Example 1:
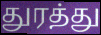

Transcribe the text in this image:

துரத்து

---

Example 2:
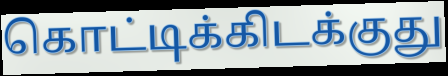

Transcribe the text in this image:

கொட்டிக்கிடக்குது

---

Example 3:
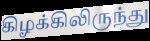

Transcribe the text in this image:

கிழக்கிலிருந்து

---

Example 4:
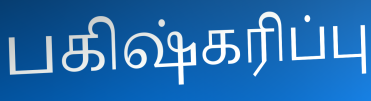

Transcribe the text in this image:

பகிஷ்கரிப்பு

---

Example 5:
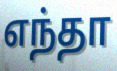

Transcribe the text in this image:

எந்தா